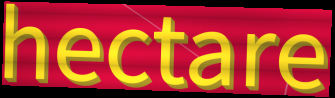
hectare